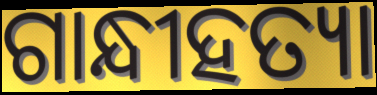
ଗାନ୍ଧୀହତ୍ୟା